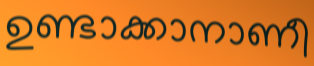
ഉണ്ടാക്കാനാണീ